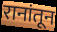
रानांतून